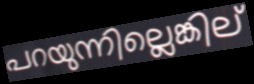
പറയുന്നില്ലെങ്കില്